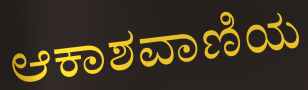
ಆಕಾಶವಾಣಿಯ